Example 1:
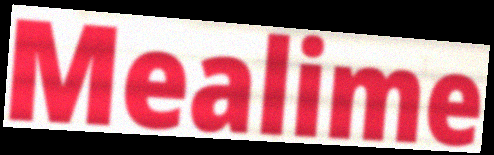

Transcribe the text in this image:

Mealime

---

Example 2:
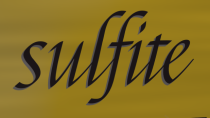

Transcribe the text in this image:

sulfite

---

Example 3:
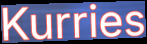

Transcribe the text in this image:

Kurries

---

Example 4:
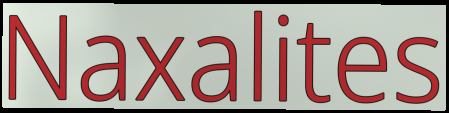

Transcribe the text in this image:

Naxalites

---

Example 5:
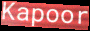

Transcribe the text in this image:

Kapoor